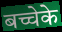
बच्चेके